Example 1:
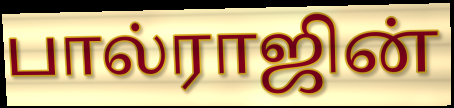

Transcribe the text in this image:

பால்ராஜின்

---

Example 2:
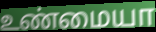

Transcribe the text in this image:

உண்மையா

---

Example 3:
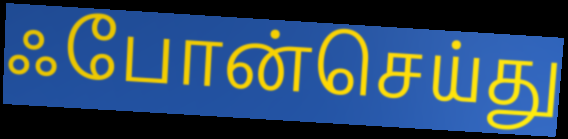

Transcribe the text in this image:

ஃபோன்செய்து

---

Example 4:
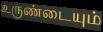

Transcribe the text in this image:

உருண்டையும்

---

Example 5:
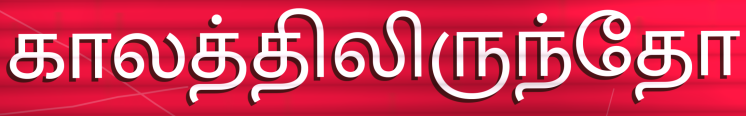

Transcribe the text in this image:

காலத்திலிருந்தோ